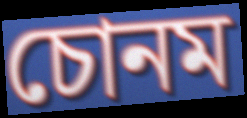
চোনম